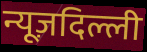
न्यूज़दिल्ली